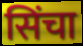
सिंचा